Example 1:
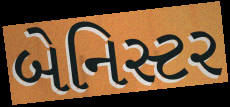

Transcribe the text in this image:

બેનિસ્ટર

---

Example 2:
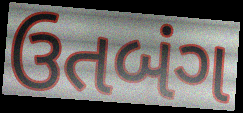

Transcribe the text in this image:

ઉતબંગ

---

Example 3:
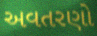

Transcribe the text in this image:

અવતરણો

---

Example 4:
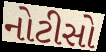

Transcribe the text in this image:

નોટીસો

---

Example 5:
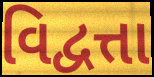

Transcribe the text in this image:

વિદ્વત્તા